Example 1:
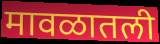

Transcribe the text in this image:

मावळातली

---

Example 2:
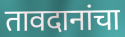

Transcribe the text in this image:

तावदानांचा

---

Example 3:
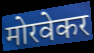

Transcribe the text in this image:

मोरवेकर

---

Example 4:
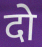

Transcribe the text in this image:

दो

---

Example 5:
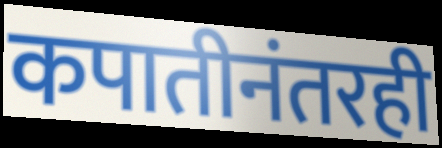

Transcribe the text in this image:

कपातीनंतरही